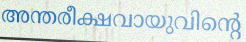
അന്തരീക്ഷവായുവിന്റെ